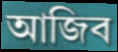
আজিব